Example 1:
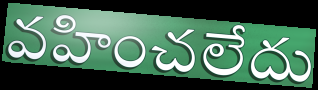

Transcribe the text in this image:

వహించలేదు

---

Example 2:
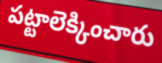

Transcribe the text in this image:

పట్టాలెక్కించారు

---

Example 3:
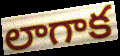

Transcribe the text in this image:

లాగాక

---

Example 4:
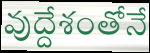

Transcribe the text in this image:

వుద్దేశంతోనే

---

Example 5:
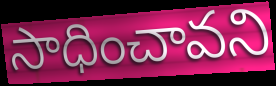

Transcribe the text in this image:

సాధించావని